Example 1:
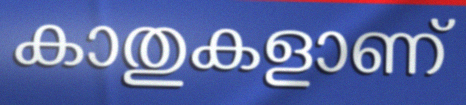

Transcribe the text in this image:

കാതുകളാണ്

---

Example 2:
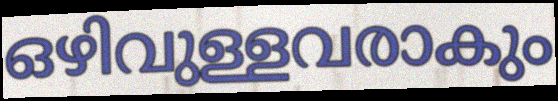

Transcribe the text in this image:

ഒഴിവുള്ളവരാകും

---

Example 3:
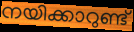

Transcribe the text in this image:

നയിക്കാറുണ്ട്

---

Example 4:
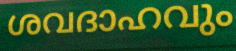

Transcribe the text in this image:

ശവദാഹവും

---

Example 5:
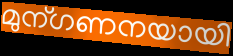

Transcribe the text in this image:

മുന്ഗണനയായി